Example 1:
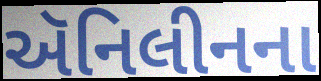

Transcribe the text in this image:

ઍનિલીનના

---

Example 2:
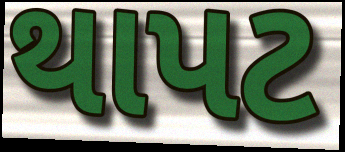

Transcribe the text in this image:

થાપટ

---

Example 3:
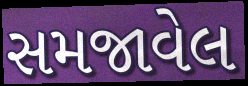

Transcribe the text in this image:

સમજાવેલ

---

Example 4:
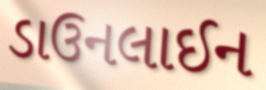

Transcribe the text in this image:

ડાઉનલાઈન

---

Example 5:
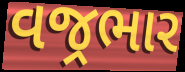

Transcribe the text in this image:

વજ્રભાર